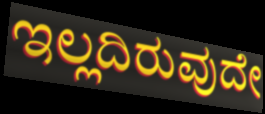
ಇಲ್ಲದಿರುವುದೇ